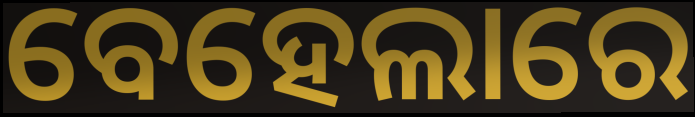
ବେହେଲାରେ